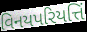
વિનયપરિયત્તિં